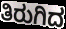
ತಿರುಗಿದ